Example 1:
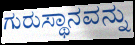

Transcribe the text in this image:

ಗುರುಸ್ಥಾನವನ್ನು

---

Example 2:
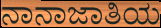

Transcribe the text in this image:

ನಾನಾಜಾತಿಯ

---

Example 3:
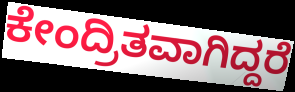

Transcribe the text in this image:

ಕೇಂದ್ರಿತವಾಗಿದ್ದರೆ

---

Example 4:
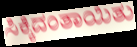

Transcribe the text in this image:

ಸಿಕ್ಕಿದಂತಾಯಿತು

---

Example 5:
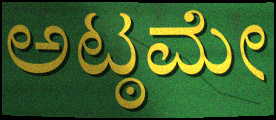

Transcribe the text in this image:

ಅಟ್ಠಮೇ